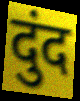
दुंद